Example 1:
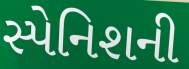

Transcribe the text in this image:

સ્પેનિશની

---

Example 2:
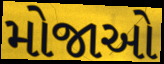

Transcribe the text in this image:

મોજાઓ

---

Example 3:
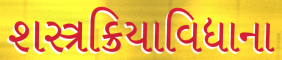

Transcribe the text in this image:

શસ્ત્રક્રિયાવિદ્યાના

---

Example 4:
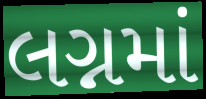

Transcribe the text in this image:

લગ્નમાં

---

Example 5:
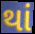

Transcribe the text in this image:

થાં